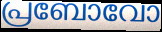
പ്രബോവോ